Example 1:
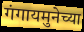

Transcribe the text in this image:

गंगायमुनेच्या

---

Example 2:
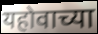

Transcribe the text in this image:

यहोवाच्या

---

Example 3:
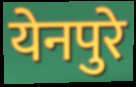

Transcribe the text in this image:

येनपुरे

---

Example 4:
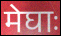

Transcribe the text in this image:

मेघाः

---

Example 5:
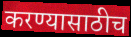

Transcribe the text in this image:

करण्यासाठीच